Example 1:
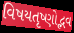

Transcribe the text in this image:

વિષયતૃષ્ણોદ્ભવ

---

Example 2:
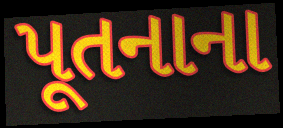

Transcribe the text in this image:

પૂતનાના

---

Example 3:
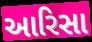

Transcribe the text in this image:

આરિસા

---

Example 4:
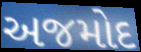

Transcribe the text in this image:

અજમોદ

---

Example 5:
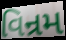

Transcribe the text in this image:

વિન્રમ